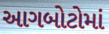
આગબોટોમાં